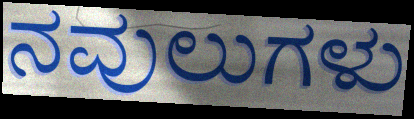
ನವುಲುಗಳು